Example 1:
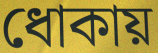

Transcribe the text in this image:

ধোকায়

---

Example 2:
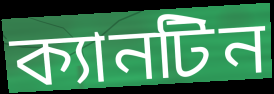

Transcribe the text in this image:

ক্যানটিন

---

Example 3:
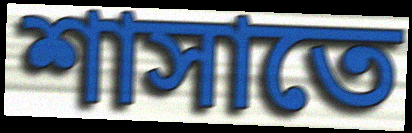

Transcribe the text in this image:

শাসাতে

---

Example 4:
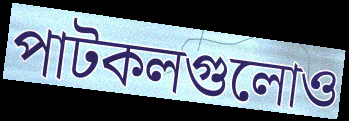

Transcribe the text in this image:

পাটকলগুলোও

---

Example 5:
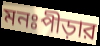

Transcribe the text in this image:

মনঃপীড়ার